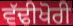
ਵੱਢੀਖੋਰੀ